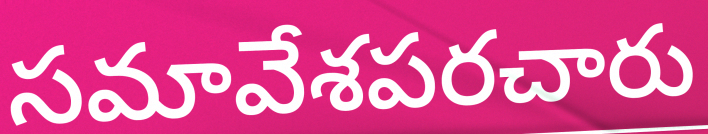
సమావేశపరచారు